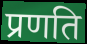
प्रणति